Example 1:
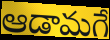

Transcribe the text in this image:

ఆడామగే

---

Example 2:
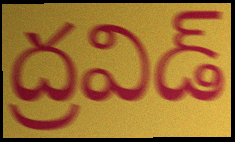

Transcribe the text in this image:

ద్రవిడ్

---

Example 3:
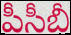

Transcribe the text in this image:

పీసీబీ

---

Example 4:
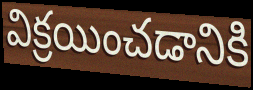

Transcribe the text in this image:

విక్రయించడానికి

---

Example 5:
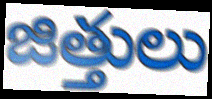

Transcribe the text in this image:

జిత్తులు